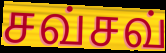
சவ்சவ்